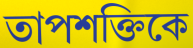
তাপশক্তিকে